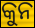
କୁନ